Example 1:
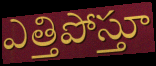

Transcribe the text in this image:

ఎత్తిపోస్తూ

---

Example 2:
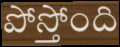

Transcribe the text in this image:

పోస్తోంది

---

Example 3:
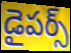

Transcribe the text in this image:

డైపర్స్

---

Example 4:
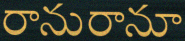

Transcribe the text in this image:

రానురానూ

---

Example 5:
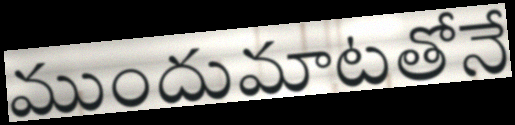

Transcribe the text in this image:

ముందుమాటతోనే